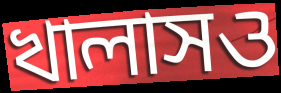
খালাসও